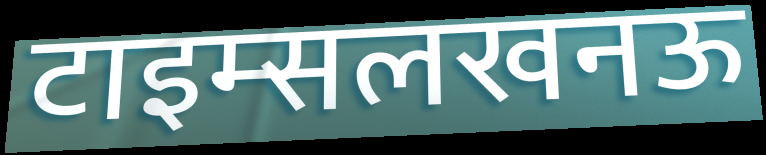
टाइम्सलखनऊ